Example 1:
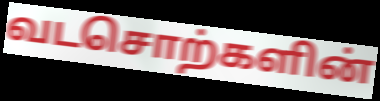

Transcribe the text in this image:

வடசொற்களின்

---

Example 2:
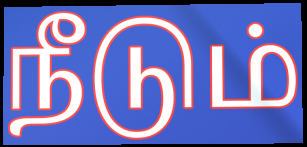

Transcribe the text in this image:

நீடும்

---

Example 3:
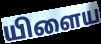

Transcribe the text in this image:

யிளைய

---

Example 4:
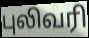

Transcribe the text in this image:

புலிவரி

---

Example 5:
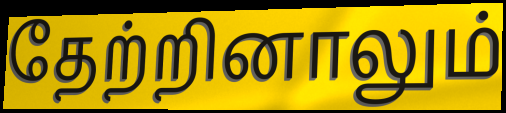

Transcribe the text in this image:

தேற்றினாலும்